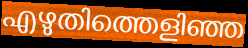
എഴുതിത്തെളിഞ്ഞ